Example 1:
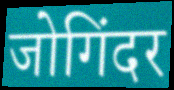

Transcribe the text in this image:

जोगिंदर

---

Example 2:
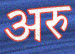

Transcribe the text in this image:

अरु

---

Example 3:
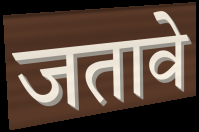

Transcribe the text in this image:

जतावे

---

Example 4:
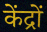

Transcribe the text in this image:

केंद्रों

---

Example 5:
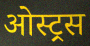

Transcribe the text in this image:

ओस्ट्रस